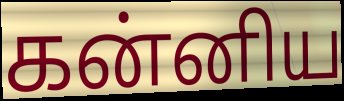
கன்னிய